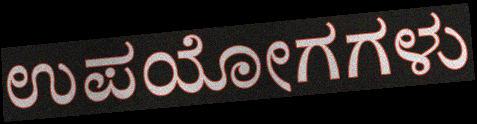
ಉಪಯೋಗಗಳು